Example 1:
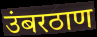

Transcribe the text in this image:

उंबरठाण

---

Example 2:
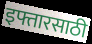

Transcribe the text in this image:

इफ्तारसाठी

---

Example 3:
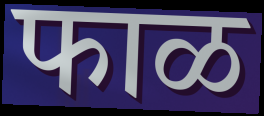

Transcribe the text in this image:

फाळ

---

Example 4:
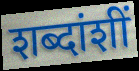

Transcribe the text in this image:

शब्दांशीं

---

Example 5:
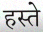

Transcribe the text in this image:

हस्ते